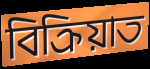
বিক্ৰিয়াত